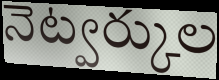
నెట్వర్కుల